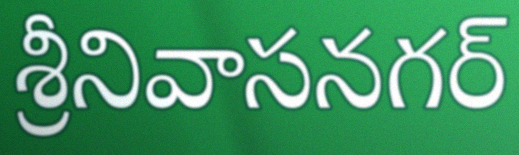
శ్రీనివాసనగర్